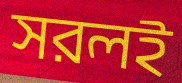
সরলই